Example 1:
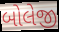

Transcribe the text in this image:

બોલેજી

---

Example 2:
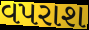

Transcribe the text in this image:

વપરાશ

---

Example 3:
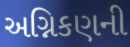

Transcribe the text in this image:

અગ્નિકણની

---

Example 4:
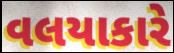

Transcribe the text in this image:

વલયાકારે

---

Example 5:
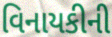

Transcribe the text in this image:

વિનાયકીની